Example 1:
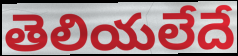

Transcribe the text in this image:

తెలియలేదే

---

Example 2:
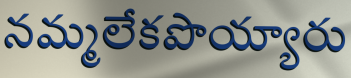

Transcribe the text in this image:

నమ్మలేకపొయ్యారు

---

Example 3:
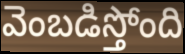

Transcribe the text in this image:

వెంబడిస్తోంది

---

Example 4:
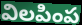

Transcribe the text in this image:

విలపింప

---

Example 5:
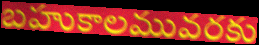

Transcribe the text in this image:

బహుకాలమువరకు